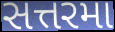
સત્તરમા